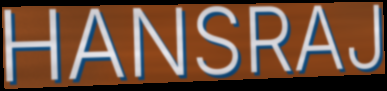
HANSRAJ